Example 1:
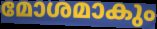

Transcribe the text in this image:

മോശമാകും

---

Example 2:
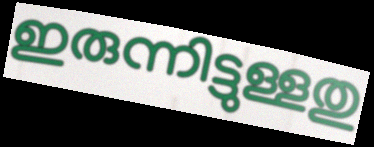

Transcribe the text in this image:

ഇരുന്നിട്ടുള്ളതു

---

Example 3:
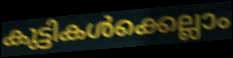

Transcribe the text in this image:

കുട്ടികൾക്കെല്ലാം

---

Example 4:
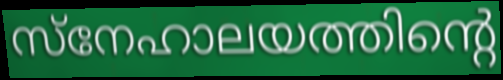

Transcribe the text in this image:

സ്നേഹാലയത്തിന്റെ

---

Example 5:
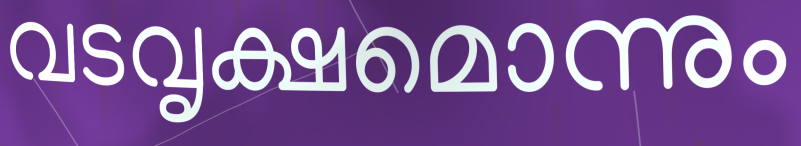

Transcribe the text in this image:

വടവൃക്ഷമൊന്നും